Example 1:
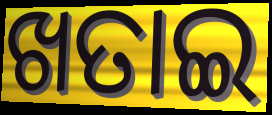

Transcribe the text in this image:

ଖତାଇ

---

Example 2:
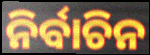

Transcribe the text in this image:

ନିର୍ବାଚିନ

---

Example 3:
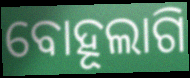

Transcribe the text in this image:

ବୋହୂଲାଗି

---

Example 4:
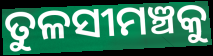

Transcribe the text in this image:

ତୁଳସୀମଞ୍ଚକୁ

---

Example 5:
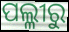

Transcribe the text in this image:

ପଲ୍ଳୀରୁ